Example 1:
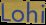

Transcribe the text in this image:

Lohi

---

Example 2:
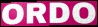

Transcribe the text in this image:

ORDO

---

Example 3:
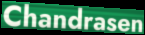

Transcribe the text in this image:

Chandrasen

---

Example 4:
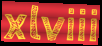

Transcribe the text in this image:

xlviii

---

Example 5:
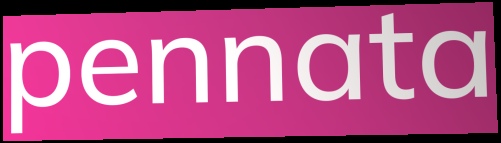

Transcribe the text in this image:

pennata